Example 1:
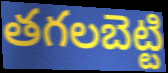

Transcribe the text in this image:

తగలబెట్టి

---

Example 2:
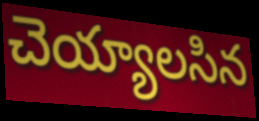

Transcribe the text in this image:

చెయ్యాలసిన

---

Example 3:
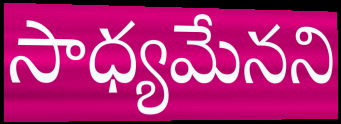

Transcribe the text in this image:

సాధ్యమేనని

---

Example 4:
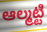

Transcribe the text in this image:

ఆల్మట్టి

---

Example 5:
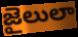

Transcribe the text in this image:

జైలులా